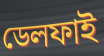
ডেলফাই